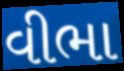
વીભા